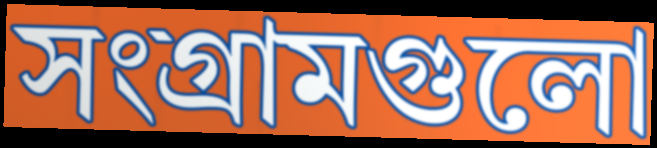
সংগ্রামগুলো